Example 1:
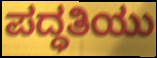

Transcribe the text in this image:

ಪದ್ಧತಿಯು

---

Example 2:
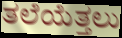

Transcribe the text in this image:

ತಲೆಯೆತ್ತಲು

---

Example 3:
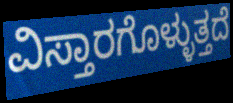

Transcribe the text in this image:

ವಿಸ್ತಾರಗೊಳ್ಳುತ್ತದೆ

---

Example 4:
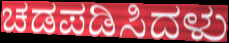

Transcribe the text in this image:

ಚಡಪಡಿಸಿದಳು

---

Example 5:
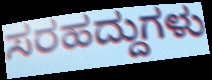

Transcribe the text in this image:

ಸರಹದ್ದುಗಳು